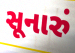
સૂનારું